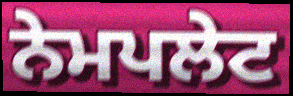
ਨੇਮਪਲੇਟ